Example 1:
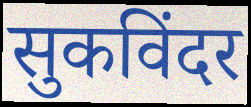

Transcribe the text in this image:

सुकविंदर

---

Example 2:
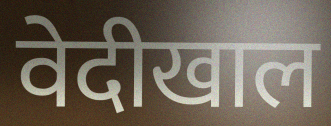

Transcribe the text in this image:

वेदीखाल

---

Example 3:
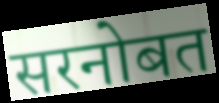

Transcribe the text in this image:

सरनोबत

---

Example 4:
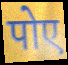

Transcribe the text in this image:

पोए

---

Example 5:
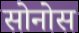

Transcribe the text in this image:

सोनोस